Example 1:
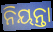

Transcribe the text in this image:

ନିୟନ୍ତା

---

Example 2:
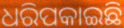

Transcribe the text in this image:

ଧରିପକାଇଛି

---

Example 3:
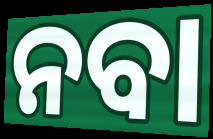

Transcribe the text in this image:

ନବା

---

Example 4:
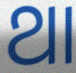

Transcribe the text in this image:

ଥା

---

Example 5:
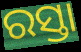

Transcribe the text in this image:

ରସ୍ତା